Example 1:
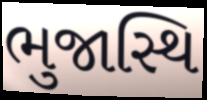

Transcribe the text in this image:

ભુજાસ્થિ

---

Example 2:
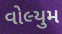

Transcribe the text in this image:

વોલ્યુમ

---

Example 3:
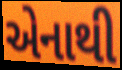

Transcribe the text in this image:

એનાથી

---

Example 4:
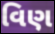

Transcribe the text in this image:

વિણ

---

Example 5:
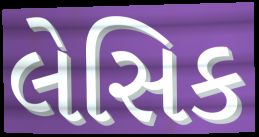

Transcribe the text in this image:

લેસિક